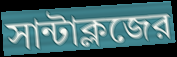
সান্টাক্লজের